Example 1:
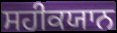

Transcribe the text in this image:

ਸਹੀਕਯਾਨ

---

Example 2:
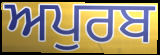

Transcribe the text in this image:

ਅਪੁਰਬ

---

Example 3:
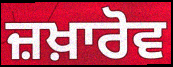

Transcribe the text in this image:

ਜ਼ਖ਼ਾਰੋਵ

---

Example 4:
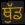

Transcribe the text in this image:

ਥੁੱਡ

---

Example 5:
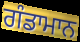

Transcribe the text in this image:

ਗੰਡਾਮਾਨ